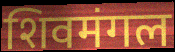
शिवमंगल